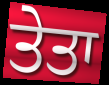
ਤੇਤਾ